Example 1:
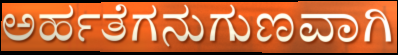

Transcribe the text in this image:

ಅರ್ಹತೆಗನುಗುಣವಾಗಿ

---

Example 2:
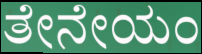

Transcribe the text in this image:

ತೇನೇಯಂ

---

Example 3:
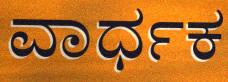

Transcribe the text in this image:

ವಾರ್ಧಕ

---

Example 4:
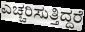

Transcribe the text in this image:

ಎಚ್ಚರಿಸುತ್ತಿದ್ದರೆ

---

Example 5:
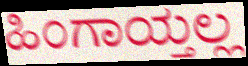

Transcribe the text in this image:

ಹಿಂಗಾಯ್ತಲ್ಲ